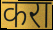
करा